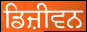
ਡਿਜ਼ੀਵਨ